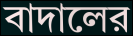
বাদালের